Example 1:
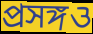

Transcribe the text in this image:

প্রসঙ্গও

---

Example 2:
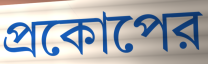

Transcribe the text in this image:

প্রকোপের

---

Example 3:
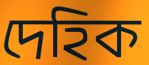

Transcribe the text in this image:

দেহিক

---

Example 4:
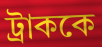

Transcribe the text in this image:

ট্রাককে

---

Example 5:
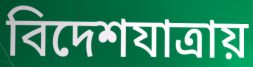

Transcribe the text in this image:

বিদেশযাত্রায়